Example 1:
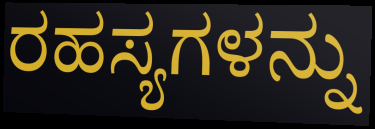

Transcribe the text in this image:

ರಹಸ್ಯಗಳನ್ನು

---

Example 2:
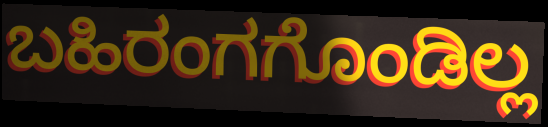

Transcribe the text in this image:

ಬಹಿರಂಗಗೊಂಡಿಲ್ಲ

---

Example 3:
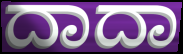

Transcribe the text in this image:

ದಾದಾ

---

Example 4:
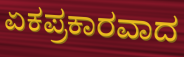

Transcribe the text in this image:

ಏಕಪ್ರಕಾರವಾದ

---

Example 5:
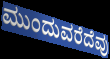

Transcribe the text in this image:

ಮುಂದುವರೆದೆವು